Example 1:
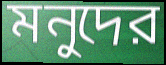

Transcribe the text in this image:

মনুদের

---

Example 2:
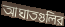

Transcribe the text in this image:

আঘাতগুলির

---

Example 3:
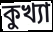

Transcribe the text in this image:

কুখ্যা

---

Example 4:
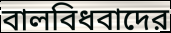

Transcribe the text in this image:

বালবিধবাদের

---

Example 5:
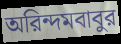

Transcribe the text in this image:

অরিন্দমবাবুর